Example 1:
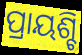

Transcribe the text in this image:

ପ୍ରାୟଶ୍ଚି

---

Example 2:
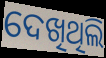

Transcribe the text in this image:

ଦେଖିଥିଲି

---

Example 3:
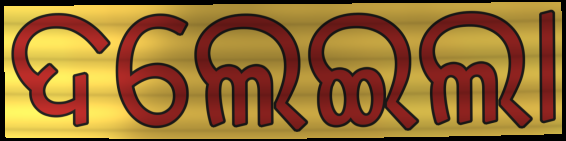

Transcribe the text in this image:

ଦଲେଇଲା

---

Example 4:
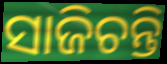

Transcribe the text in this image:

ସାଜିଚନ୍ତି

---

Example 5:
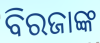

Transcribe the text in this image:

ବିରଜାଙ୍କ